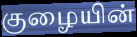
குழையின்